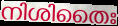
നിശിതൈഃ